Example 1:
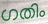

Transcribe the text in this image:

ഗതിം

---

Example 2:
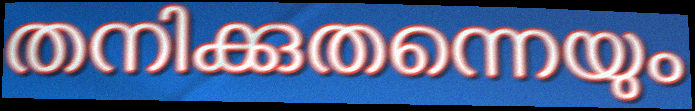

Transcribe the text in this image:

തനിക്കുതന്നെയും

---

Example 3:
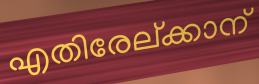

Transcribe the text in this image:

എതിരേല്ക്കാന്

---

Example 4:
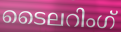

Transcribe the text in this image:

ടൈലറിംഗ്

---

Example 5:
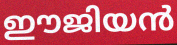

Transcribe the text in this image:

ഈജിയൻ